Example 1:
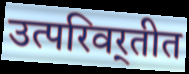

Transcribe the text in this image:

उत्परिवर्तीत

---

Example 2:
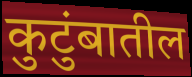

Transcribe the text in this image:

कुटुंबातील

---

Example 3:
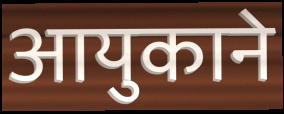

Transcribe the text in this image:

आयुकाने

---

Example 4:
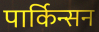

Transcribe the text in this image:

पार्किन्सन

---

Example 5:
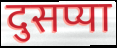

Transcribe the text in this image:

दुसप्या